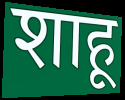
शाहू